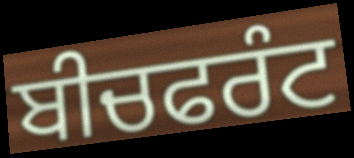
ਬੀਚਫਰੰਟ